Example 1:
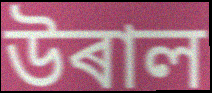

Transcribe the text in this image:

উৰাল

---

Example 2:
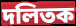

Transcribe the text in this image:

দলিতক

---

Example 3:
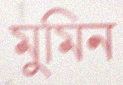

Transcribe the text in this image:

মুমিন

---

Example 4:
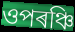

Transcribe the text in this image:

ওপৰঞ্চি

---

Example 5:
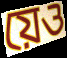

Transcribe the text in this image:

য়েও